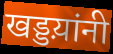
खड्डय़ांनी